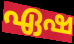
ഏഷ